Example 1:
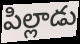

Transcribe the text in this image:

పిల్లాడు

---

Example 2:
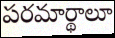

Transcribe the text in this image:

పరమార్థాలూ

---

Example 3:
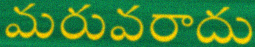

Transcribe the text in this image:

మరువరాదు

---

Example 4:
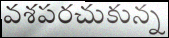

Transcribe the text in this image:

వశపరచుకున్న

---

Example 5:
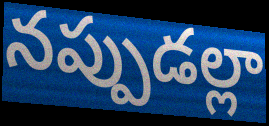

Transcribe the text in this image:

నప్పుడల్లా